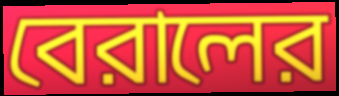
বেরালের